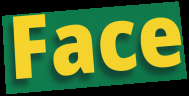
Face